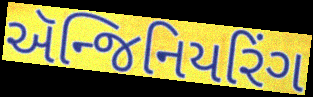
ઍન્જિનિયરિંગ